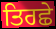
ਤਿਰਛੇ